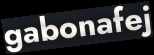
gabonafej